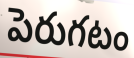
పెరుగటం